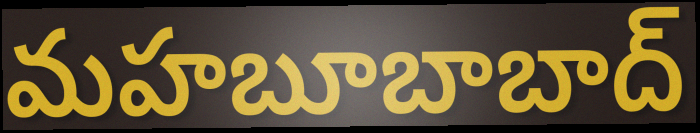
మహబూబాబాద్